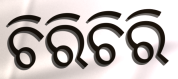
ଚିରିଚିରି